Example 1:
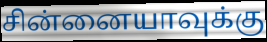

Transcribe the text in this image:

சின்னையாவுக்கு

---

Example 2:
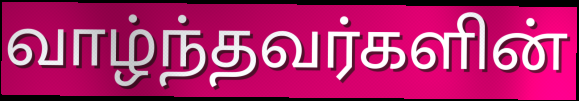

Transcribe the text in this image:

வாழ்ந்தவர்களின்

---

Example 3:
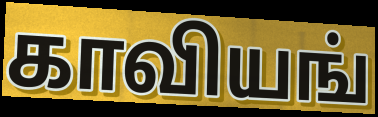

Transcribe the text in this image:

காவியங்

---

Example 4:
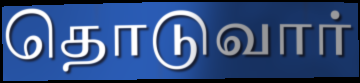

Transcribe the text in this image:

தொடுவார்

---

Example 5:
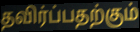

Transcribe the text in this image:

தவிர்ப்பதற்கும்